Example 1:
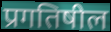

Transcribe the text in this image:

प्रगतिषील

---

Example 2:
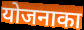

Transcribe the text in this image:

योजनाका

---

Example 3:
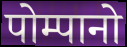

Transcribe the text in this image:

पोम्पानो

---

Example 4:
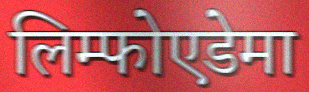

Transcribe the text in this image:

लिम्फोएडेमा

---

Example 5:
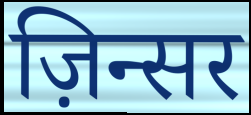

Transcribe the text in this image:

ज़िन्सर